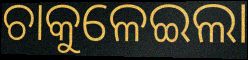
ଚାକୁଳେଇଲା